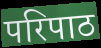
परिपाठ